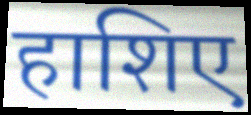
हाशिए